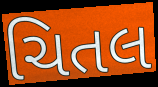
ચિતલ